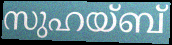
സുഹയ്ബ്